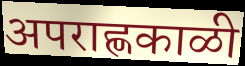
अपराह्णकाळी